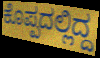
ಕೊಪ್ಪದಲ್ಲಿದ್ದ